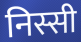
निस्सी